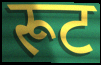
रूट